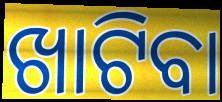
ଖାଟିବା